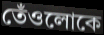
তেঁওলোকে